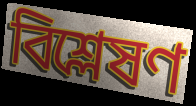
বিশ্লেষণ